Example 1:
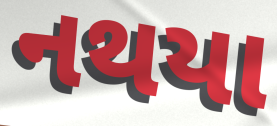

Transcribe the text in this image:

નથયા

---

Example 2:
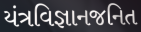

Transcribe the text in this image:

યંત્રવિજ્ઞાનજનિત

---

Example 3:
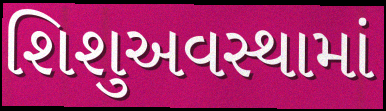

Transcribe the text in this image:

શિશુઅવસ્થામાં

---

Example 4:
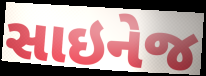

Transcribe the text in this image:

સાઇનેજ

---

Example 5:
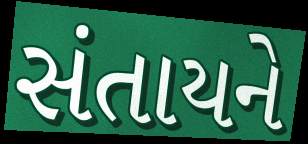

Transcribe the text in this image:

સંતાયને